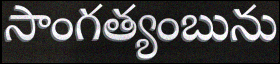
సాంగత్యంబును